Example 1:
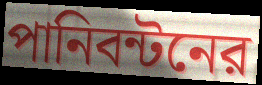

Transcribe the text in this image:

পানিবন্টনের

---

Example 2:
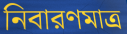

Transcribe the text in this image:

নিবারণমাত্র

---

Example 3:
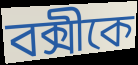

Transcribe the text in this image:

বক্সীকে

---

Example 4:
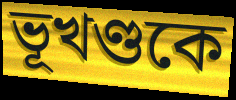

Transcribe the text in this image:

ভূখণ্ডকে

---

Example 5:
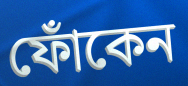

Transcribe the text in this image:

ফোঁকেন